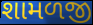
શામળજી